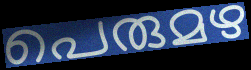
പെരുമഴ